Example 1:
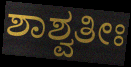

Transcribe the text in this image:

ಶಾಶ್ವತೀಃ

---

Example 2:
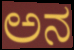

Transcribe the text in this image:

ಅನ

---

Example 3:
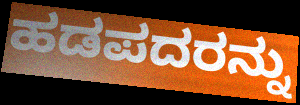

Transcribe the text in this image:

ಹಡಪದರನ್ನು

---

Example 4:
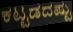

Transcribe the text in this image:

ಕಟ್ಟಡದಷ್ಟು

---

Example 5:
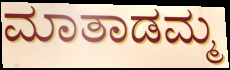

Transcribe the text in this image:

ಮಾತಾಡಮ್ಮ